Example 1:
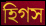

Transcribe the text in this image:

হিগস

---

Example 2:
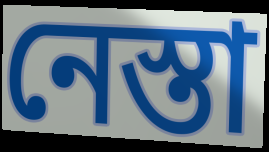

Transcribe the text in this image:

নেস্তা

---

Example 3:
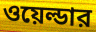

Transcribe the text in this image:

ওয়েল্ডার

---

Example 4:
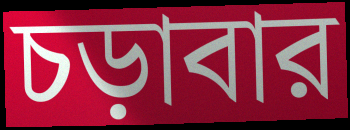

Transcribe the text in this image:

চড়াবার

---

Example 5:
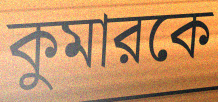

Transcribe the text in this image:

কুমারকে